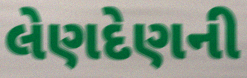
લેણદેણની